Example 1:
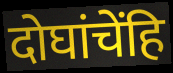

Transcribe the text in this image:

दोघांचेंहि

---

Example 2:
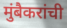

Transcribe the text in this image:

मुंबैकरांची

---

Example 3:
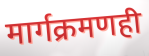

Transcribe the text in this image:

मार्गक्रमणही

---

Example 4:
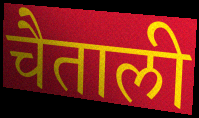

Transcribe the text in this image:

चैताली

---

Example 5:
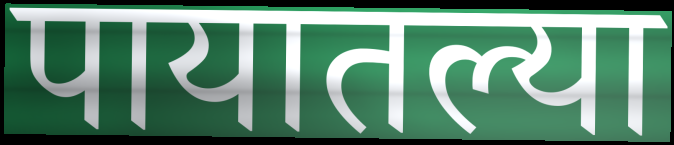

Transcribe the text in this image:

पायातल्या